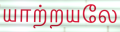
யாற்றயலே